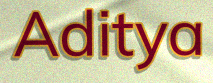
Aditya